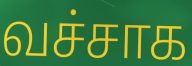
வச்சாக